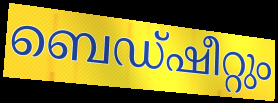
ബെഡ്ഷീറ്റും